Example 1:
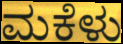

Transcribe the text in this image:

ಮಕೆಳು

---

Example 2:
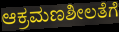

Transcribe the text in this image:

ಆಕ್ರಮಣಶೀಲತೆಗೆ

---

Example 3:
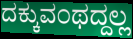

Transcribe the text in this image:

ದಕ್ಕುವಂಥದ್ದಲ್ಲ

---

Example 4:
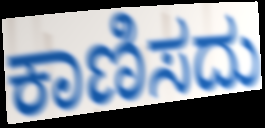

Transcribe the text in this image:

ಕಾಣಿಸದು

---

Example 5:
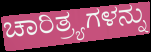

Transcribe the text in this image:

ಚಾರಿತ್ರ್ಯಗಳನ್ನು